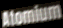
Atomium